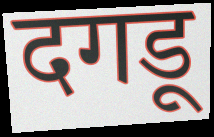
दगडू